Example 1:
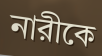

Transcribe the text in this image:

নারীকে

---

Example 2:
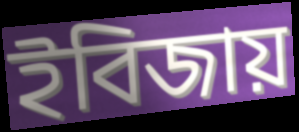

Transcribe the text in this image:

ইবিজায়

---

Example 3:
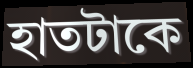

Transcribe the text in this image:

হাতটাকে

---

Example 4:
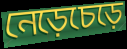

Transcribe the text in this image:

নেড়েচেড়ে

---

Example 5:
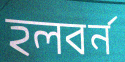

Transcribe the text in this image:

হলবর্ন